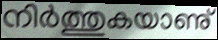
നിർത്തുകയാണു്